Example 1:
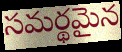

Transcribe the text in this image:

సమర్థమైన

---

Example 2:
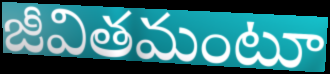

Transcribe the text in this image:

జీవితమంటూ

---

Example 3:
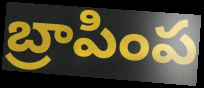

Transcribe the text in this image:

బ్రాపింప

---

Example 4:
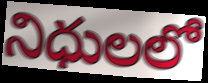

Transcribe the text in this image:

నిధులలో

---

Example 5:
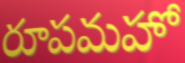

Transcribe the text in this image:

రూపమహో